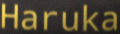
Haruka